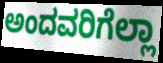
ಅಂದವರಿಗೆಲ್ಲಾ